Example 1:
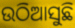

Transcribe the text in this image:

ଉଠିଆସୁଛି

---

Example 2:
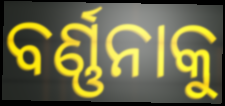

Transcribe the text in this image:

ବର୍ଣ୍ଣନାକୁ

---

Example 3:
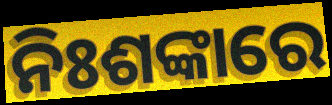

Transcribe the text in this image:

ନିଃଶଙ୍କାରେ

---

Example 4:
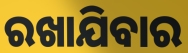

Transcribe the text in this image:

ରଖାଯିବାର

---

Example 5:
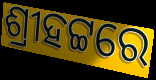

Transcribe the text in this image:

ଶ୍ରୀହଟ୍ଟରେ